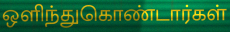
ஒளிந்துகொண்டார்கள்